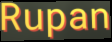
Rupan